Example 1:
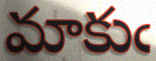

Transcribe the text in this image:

మాకుఁ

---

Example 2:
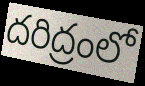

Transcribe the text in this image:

దరిద్రంలో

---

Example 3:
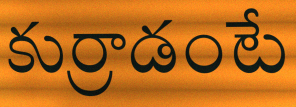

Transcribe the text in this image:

కుర్రాడంటే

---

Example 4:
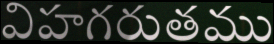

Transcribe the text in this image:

విహగరుతము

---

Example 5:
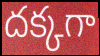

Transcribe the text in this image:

దక్కగా